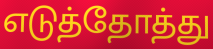
எடுத்தோத்து